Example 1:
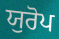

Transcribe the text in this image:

ਯੁਰੋਪ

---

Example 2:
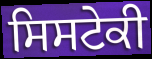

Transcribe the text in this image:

ਸਿਸਟੇਕੀ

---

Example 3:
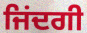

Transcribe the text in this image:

ਜਿਂਦਗੀ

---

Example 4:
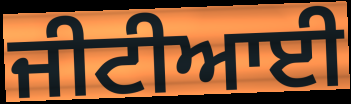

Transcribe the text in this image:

ਜੀਟੀਆਈ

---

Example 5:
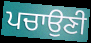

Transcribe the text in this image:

ਪਚਾਉਣੀ